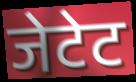
जेटेट